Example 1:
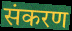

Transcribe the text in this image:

संकरण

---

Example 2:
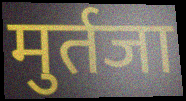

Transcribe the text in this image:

मुर्तजा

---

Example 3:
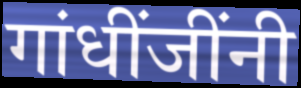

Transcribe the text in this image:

गांधींजींनी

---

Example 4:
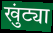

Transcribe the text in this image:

खुंट्या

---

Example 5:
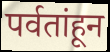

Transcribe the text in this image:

पर्वतांहून